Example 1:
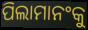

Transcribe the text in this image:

ପିଲାମାନଂକୁ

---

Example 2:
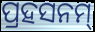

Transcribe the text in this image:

ପ୍ରହସନମ୍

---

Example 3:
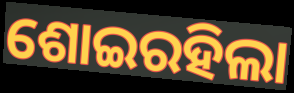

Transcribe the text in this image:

ଶୋଇରହିଲା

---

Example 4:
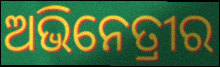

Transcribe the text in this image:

ଅଭିନେତ୍ରୀର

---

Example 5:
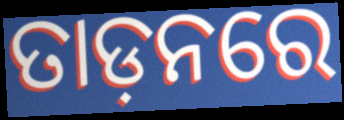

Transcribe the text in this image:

ତାଡ଼ନରେ